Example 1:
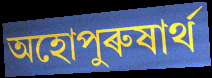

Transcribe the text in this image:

অহোপুৰুষাৰ্থ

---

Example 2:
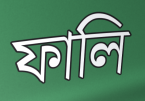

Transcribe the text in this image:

ফালি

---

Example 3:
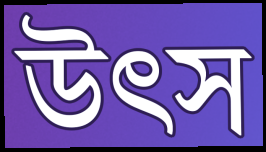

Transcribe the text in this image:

উৎস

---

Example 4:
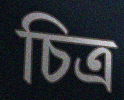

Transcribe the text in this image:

চিত্ৰ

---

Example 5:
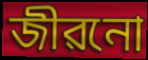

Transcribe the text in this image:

জীৱনো